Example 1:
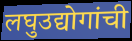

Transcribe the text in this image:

लघुउद्योगांची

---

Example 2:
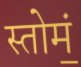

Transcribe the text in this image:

स्तोमं॒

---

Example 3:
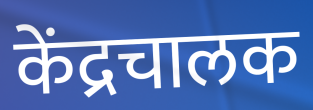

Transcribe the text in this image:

केंद्रचालक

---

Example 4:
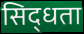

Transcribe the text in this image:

सिद्धता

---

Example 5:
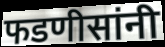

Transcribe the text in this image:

फडणीसांनी